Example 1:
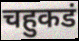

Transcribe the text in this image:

चहुकडं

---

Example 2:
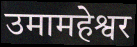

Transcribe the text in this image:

उमामहेश्वर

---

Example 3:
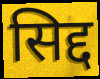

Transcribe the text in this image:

सिद्द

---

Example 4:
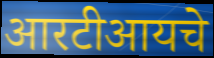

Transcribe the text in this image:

आरटीआयचे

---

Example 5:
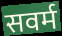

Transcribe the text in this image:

सवर्म